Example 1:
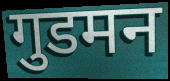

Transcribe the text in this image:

गुडमन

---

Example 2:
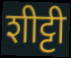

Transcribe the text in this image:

शीट्टी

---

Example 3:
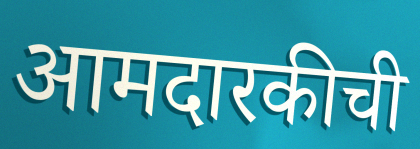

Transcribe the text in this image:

आमदारकीची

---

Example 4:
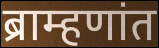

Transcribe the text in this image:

ब्राम्हणांत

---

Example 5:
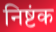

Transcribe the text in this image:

निष्टंक